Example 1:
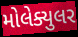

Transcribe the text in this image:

મોલેક્યુલર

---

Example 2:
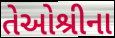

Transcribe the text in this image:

તેઓશ્રીના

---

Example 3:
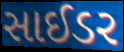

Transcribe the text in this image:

સાઈડર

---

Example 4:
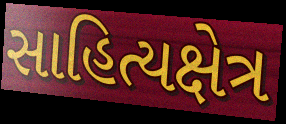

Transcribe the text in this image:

સાહિત્યક્ષેત્ર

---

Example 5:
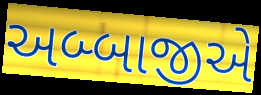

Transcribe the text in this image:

અબ્બાજીએ